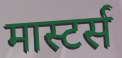
मास्टर्स